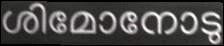
ശിമോനോടു